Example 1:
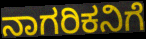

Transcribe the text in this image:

ನಾಗರಿಕನಿಗೆ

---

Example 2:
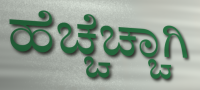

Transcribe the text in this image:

ಹೆಚ್ಚೆಚ್ಚಾಗಿ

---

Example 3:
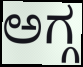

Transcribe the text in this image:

ಅಗ್ಗ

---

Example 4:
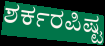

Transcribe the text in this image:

ಶರ್ಕರಪಿಷ್ಟ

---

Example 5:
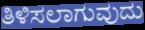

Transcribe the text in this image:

ತಿಳಿಸಲಾಗುವುದು